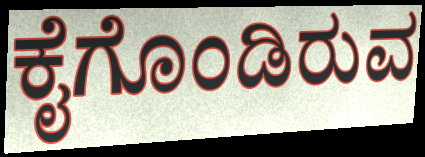
ಕೈಗೊಂಡಿರುವ